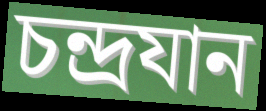
চন্দ্ৰযান